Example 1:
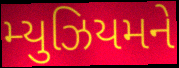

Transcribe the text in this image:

મ્યુઝિયમને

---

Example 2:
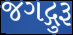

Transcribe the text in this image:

જગદ્ગુરૂ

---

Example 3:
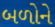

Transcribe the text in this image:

બળોને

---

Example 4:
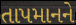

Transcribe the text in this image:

તાપમાનને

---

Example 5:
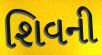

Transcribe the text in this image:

શિવની